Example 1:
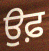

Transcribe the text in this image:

ਉਫ਼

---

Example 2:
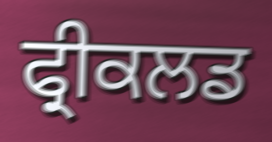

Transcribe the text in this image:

ਫ੍ਰੀਕਲਡ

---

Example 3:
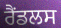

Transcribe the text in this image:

ਰੈਂਡਲਸ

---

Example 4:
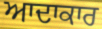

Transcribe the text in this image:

ਆਦਾਕਾਰ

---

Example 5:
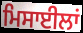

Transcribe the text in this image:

ਮਿਸਾਈਲਾਂ